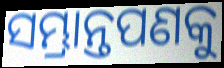
ସମ୍ଭ୍ରାନ୍ତପଣକୁ